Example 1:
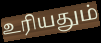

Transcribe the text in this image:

உரியதும்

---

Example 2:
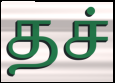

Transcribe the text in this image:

தச்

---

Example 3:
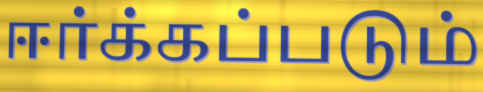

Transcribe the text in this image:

ஈர்க்கப்படும்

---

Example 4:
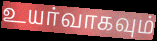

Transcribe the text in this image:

உயர்வாகவும்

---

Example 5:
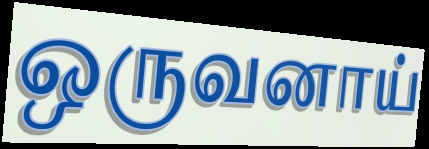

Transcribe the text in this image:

ஒருவனாய்